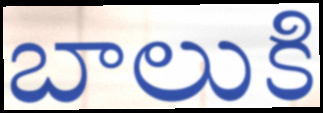
బాలుకి